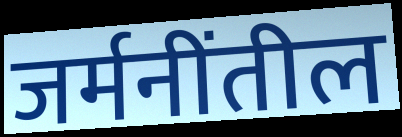
जर्मनींतील